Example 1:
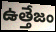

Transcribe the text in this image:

ఉత్తేజం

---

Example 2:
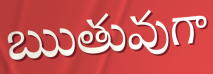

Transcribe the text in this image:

ఋతువుగా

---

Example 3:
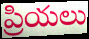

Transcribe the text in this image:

ప్రియలు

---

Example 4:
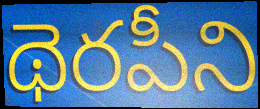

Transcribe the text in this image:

థెరపీని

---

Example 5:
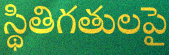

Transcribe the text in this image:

స్థితిగతులపై